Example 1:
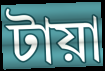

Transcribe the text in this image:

টায়া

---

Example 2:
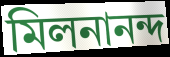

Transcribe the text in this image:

মিলনানন্দ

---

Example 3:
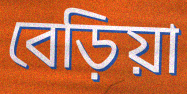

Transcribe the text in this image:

বেড়িয়া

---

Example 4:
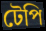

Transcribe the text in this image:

টেপি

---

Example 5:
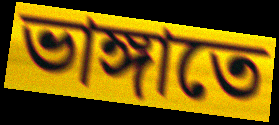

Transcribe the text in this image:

ভাঙ্গাতে